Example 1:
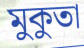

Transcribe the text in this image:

মুকুতা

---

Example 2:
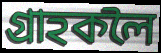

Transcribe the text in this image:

গ্ৰাহকলৈ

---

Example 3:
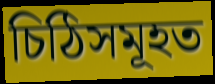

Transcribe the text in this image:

চিঠিসমূহত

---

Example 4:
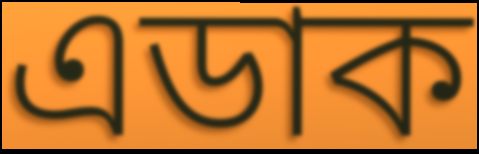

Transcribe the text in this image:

এডাক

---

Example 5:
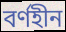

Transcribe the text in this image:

বৰ্ণহীন